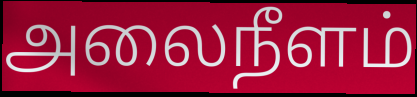
அலைநீளம்